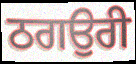
ਠਗਉਰੀ